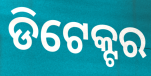
ଡିଟେକ୍ଟର